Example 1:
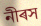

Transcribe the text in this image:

নীৰস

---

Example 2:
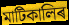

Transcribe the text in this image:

মাটিকালিৰ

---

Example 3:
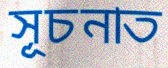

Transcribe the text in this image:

সূচনাত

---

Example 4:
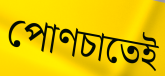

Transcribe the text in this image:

পোণচাতেই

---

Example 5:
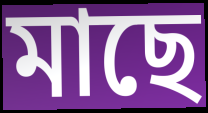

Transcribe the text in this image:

মাছে